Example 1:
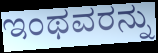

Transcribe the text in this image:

ಇಂಥವರನ್ನು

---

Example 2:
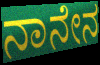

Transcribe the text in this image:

ನಾನೇನ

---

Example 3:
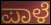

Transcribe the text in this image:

ಪಾಳೆ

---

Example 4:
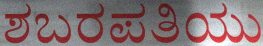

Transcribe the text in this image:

ಶಬರಪತಿಯು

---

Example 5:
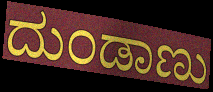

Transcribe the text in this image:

ದುಂಡಾಣು